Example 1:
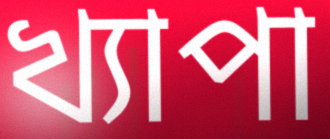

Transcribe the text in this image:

খ্যাপা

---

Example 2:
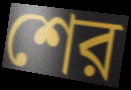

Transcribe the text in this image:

শের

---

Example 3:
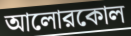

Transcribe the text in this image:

আলোরকোল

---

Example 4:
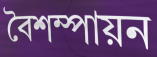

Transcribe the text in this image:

বৈশম্পায়ন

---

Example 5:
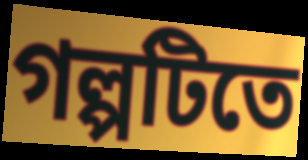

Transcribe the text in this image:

গল্পটিতে